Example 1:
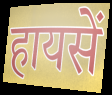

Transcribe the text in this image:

हायसें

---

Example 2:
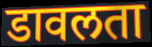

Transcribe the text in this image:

डावलता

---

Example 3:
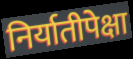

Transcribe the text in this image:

निर्यातीपेक्षा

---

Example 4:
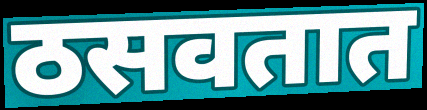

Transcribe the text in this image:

ठसवतात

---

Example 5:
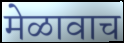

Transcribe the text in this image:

मेळावाच